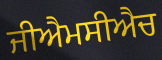
ਜੀਐਮਸੀਐਚ